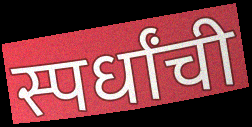
स्पर्धांची